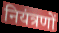
नियंत्रणों